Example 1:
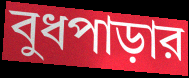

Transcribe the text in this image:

বুধপাড়ার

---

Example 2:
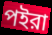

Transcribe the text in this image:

পইরা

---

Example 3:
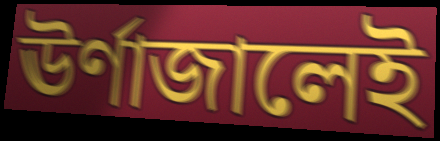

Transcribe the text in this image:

ঊর্ণাজালেই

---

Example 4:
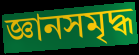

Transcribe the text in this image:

জ্ঞানসমৃদ্ধ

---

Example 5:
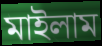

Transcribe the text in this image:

মাইলাম